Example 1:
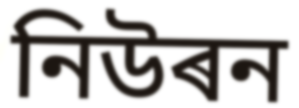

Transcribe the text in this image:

নিউৰন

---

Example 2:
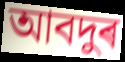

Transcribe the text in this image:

আবদুৰ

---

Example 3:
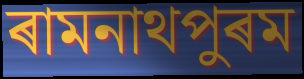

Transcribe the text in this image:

ৰামনাথপুৰম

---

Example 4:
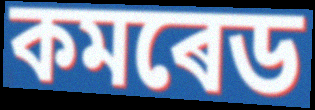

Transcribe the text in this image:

কমৰেড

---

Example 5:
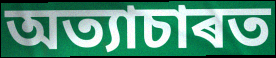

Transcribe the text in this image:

অত্যাচাৰত